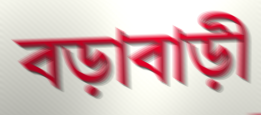
বড়াবাড়ী